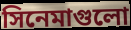
সিনেমাগুলো